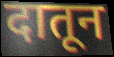
दातून